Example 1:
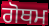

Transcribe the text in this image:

ਗੋਥਮ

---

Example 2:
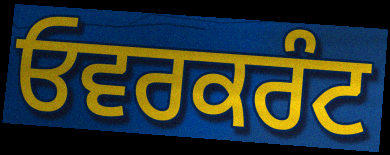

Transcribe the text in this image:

ਓਵਰਕਰੰਟ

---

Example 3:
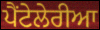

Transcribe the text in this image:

ਪੈਂਟੇਲੇਰੀਆ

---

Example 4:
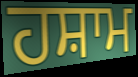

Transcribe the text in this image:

ਹਸ਼ਾਮ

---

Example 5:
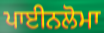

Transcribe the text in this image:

ਪਾਈਨਲੋਮਾ